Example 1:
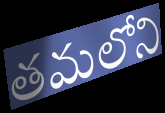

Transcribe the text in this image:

తమలోని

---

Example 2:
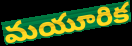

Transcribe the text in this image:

మయూరిక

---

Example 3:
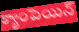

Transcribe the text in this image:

క్యాంపెయిన్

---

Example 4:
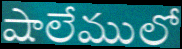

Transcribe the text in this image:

షాలేములో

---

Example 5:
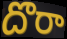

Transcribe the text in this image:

దొరా